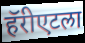
हॅरीएटला